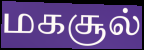
மகசூல்